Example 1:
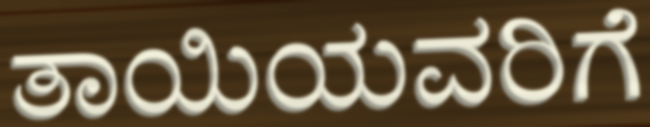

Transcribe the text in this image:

ತಾಯಿಯವರಿಗೆ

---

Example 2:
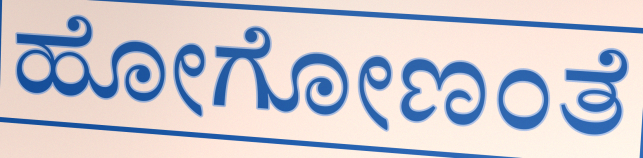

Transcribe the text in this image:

ಹೋಗೋಣಂತೆ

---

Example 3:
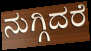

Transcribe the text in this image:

ನುಗ್ಗಿದರೆ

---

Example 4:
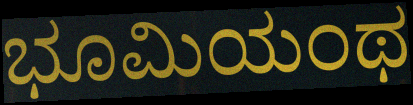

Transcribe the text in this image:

ಭೂಮಿಯಂಥ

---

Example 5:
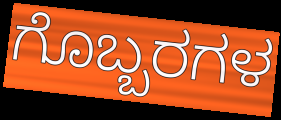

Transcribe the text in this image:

ಗೊಬ್ಬರಗಳ